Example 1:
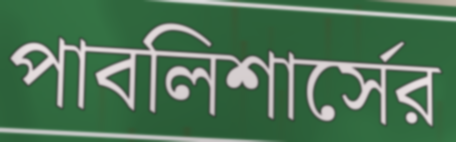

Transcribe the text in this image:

পাবলিশার্সের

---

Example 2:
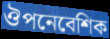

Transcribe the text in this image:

ঔপনেবেশিক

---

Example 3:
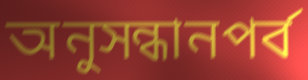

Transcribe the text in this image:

অনুসন্ধানপর্ব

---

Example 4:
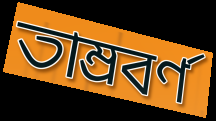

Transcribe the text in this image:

তাম্রবর্ণ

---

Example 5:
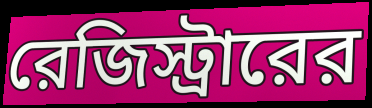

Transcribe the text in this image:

রেজিস্ট্রারের